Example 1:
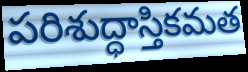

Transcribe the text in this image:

పరిశుద్ధాస్తికమత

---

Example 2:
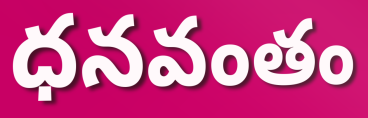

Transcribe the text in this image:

ధనవంతం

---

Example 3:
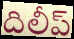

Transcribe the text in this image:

దిలీప్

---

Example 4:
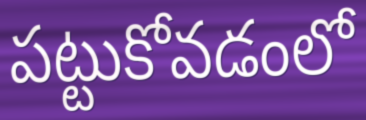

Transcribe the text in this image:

పట్టుకోవడంలో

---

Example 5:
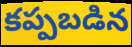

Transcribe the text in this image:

కప్పబడిన